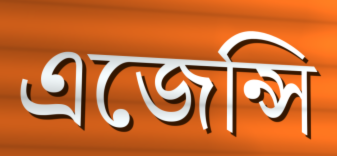
এজেন্সি